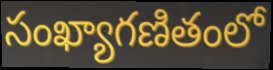
సంఖ్యాగణితంలో